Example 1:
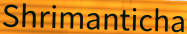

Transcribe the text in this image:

Shrimanticha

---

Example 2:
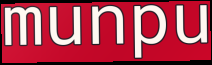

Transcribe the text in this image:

munpu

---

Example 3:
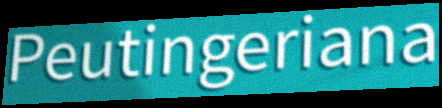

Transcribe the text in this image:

Peutingeriana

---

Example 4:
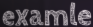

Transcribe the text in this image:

examle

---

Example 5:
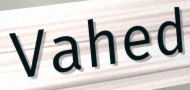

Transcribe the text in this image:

Vahed